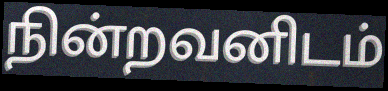
நின்றவனிடம்